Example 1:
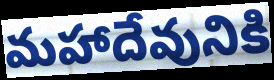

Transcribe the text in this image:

మహాదేవునికి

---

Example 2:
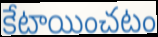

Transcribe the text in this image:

కేటాయించటం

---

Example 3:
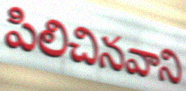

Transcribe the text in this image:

పిలిచినవాని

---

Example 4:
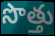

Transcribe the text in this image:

సొత్తు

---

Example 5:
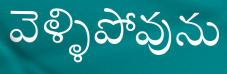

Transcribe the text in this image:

వెళ్ళిపోవును